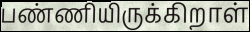
பண்ணியிருக்கிறாள்